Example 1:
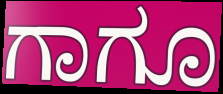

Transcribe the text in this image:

ಗಾಗೂ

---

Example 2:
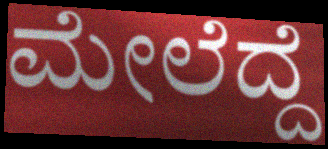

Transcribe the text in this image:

ಮೇಲೆದ್ದೆ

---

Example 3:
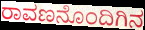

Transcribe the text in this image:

ರಾವಣನೊಂದಿಗಿನ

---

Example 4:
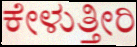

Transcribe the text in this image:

ಕೇಳುತ್ತೀರಿ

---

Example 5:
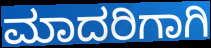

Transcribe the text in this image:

ಮಾದರಿಗಾಗಿ